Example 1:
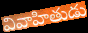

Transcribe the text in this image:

వివాహితుడు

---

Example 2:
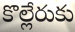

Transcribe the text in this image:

కొల్లేరుకు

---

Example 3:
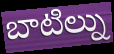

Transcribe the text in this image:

బాటిల్ను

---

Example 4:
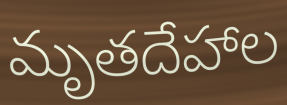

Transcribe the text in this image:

మృతదేహాల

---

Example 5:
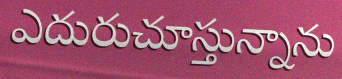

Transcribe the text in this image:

ఎదురుచూస్తున్నాను